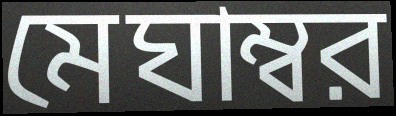
মেঘাম্বর